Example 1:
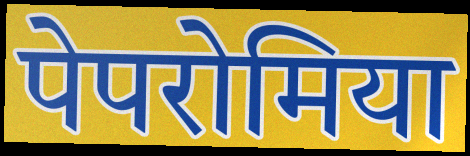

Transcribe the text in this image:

पेपरोमिया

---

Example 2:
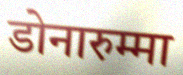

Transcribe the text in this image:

डोनारुम्मा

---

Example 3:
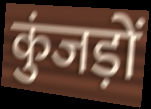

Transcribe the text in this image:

कुंजड़ों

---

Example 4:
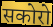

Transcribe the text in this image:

सकोरो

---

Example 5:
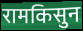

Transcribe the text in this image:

रामकिसुन